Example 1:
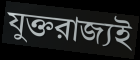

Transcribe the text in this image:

যুক্তরাজ্যই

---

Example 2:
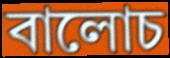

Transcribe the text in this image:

বালোচ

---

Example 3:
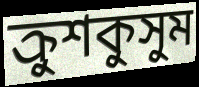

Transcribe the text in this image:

ক্রুশকুসুম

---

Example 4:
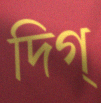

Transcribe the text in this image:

দিগ্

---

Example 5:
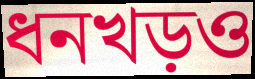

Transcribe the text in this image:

ধনখড়ও